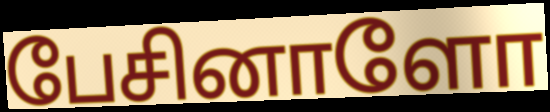
பேசினாளோ